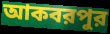
আকবরপুর